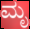
ಮೃ